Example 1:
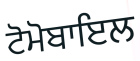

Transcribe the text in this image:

ਟੋਮੋਬਾਇਲ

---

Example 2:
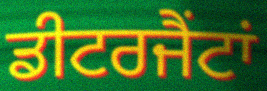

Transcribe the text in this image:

ਡੀਟਰਜੈਂਟਾਂ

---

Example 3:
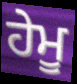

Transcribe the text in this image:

ਹੇਮੂ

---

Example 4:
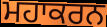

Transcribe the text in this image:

ਮਹਾਕਰਨ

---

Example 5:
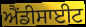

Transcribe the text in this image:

ਐਂਡੀਸਾਈਟ